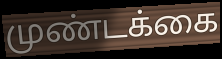
முண்டக்கை